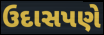
ઉદાસપણે